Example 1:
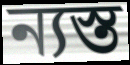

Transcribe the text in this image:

ন্যস্ত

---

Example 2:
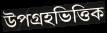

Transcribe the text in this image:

উপগ্রহভিত্তিক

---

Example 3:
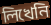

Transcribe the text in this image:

লিখেনি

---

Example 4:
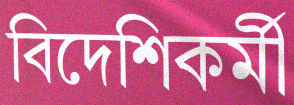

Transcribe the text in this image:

বিদেশিকর্মী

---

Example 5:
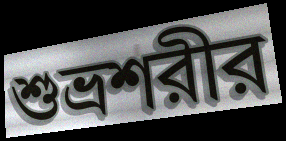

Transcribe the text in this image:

শুভ্রশরীর